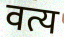
वत्य